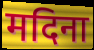
मदिना